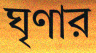
ঘৃণার